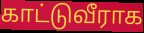
காட்டுவீராக